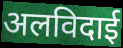
अलविदाई